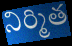
నిర్మిత